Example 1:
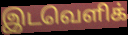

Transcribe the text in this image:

இடவெளிக்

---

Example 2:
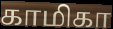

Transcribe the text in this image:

காமிகா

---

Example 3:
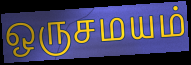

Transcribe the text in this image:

ஒருசமயம்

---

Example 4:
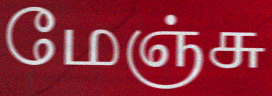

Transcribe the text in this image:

மேஞ்சு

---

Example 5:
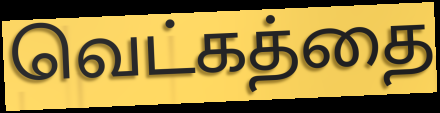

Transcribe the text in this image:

வெட்கத்தை